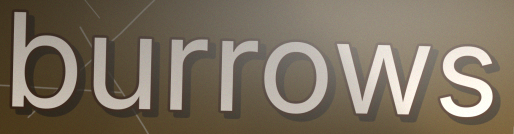
burrows